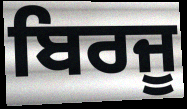
ਬਿਰਜੂ